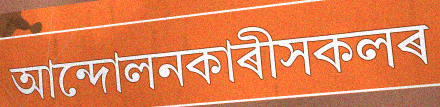
আন্দোলনকাৰীসকলৰ